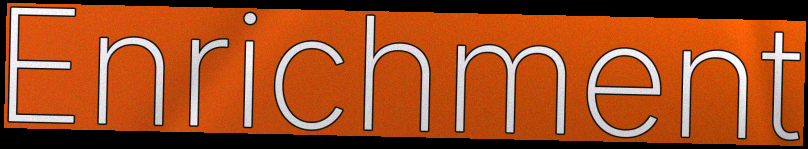
Enrichment